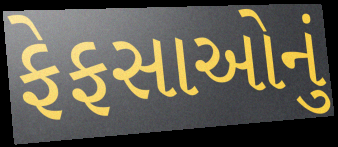
ફેફસાઓનું